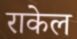
राकेल